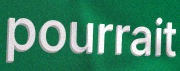
pourrait